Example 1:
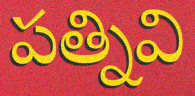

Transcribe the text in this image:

పత్నివి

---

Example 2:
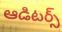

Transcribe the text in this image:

ఆడిటర్స్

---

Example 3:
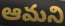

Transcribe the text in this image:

ఆమని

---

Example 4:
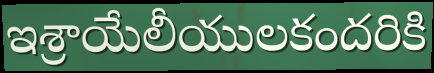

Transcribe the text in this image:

ఇశ్రాయేలీయులకందరికి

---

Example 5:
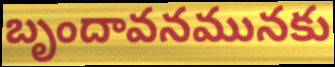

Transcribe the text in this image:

బృందావనమునకు